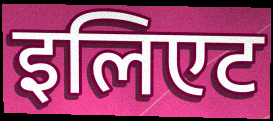
इलिएट